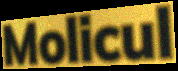
Molicul